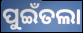
ପୁଇଁତଲା